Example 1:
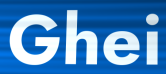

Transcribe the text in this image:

Ghei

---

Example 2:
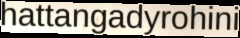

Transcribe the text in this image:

hattangadyrohini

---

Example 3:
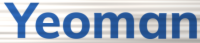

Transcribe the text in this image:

Yeoman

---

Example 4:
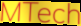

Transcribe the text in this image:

MTech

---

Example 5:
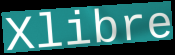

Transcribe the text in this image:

Xlibre